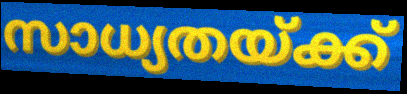
സാധ്യതയ്ക്ക്